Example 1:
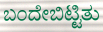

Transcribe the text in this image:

ಬಂದೇಬಿಟ್ಟಿತು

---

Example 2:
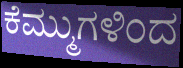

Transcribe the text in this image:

ಕೆಮ್ಮುಗಳಿಂದ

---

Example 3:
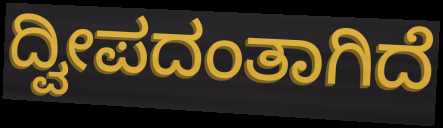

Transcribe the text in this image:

ದ್ವೀಪದಂತಾಗಿದೆ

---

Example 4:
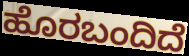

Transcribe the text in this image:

ಹೊರಬಂದಿದೆ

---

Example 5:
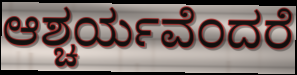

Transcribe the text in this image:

ಆಶ್ಚರ್ಯವೆಂದರೆ